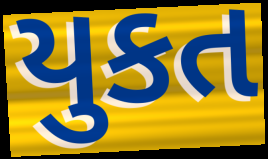
યુકત